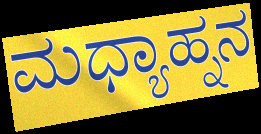
ಮಧ್ಯಾಹ್ನನ